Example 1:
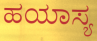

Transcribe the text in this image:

ಹಯಾಸ್ಯ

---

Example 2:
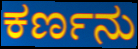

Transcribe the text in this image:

ಕರ್ಣನು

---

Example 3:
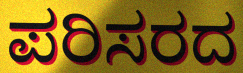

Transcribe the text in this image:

ಪರಿಸರದ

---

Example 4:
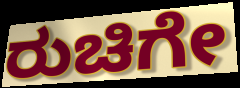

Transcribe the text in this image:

ರುಚಿಗೇ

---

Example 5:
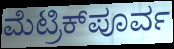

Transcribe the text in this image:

ಮೆಟ್ರಿಕ್‌ಪೂರ್ವ